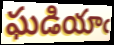
ఘడియాఁ